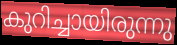
കുറിച്ചായിരുന്നു